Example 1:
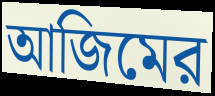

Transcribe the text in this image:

আজিমের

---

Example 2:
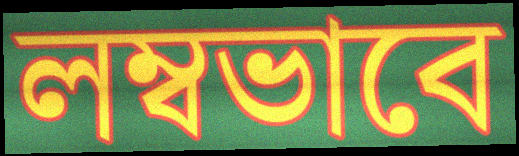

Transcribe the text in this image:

লম্বভাবে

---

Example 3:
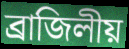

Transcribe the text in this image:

ব্রাজিলীয়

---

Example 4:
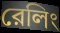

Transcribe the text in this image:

রেলিং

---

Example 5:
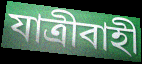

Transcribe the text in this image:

যাত্রীবাহী